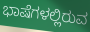
ಭಾಷೆಗಳಲ್ಲಿರುವ